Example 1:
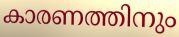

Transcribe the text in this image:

കാരണത്തിനും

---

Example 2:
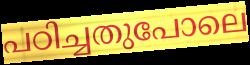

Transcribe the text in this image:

പഠിച്ചതുപോലെ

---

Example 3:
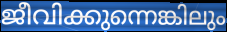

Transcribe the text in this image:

ജീവിക്കുന്നെങ്കിലും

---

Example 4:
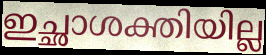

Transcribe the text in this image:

ഇച്ഛാശക്തിയില്ല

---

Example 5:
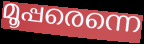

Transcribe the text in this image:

മൂപ്പരെന്നെ